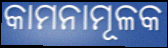
କାମନାମୂଳକ